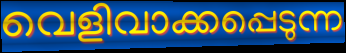
വെളിവാക്കപ്പെടുന്ന